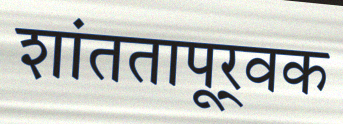
शांततापूर्वक